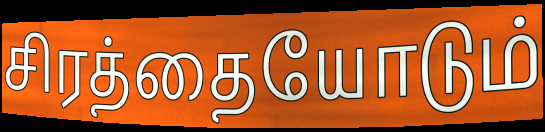
சிரத்தையோடும்